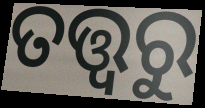
ତତ୍ତ୍ୱରୁ